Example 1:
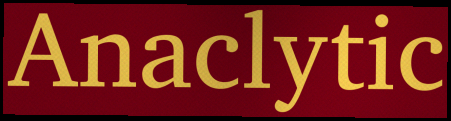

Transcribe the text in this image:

Anaclytic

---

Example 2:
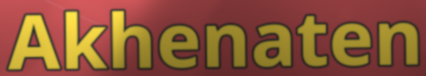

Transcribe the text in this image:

Akhenaten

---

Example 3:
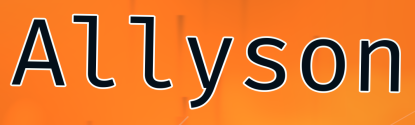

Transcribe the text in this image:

Allyson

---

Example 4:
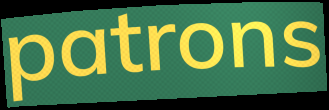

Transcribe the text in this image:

patrons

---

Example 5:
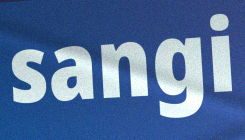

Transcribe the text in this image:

sangi